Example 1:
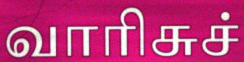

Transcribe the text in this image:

வாரிசுச்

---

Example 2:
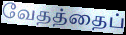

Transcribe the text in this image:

வேதத்தைப்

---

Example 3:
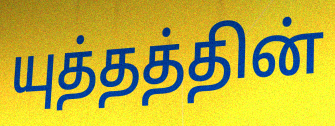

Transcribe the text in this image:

யுத்தத்தின்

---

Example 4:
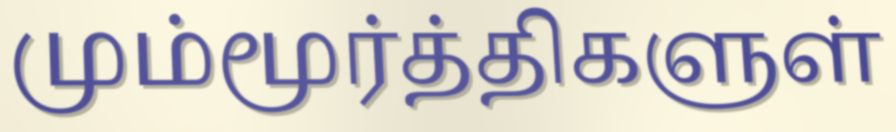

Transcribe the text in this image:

மும்மூர்த்திகளுள்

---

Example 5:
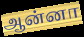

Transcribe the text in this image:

ஆன்னா